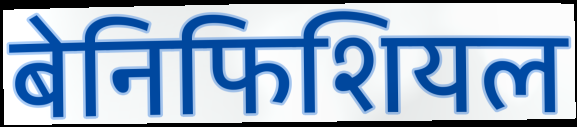
बेनिफिशियल